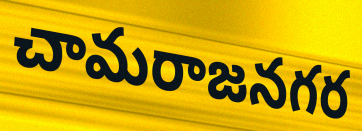
చామరాజనగర